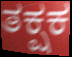
ತಕ್ಷಕ